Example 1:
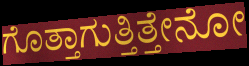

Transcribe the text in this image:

ಗೊತ್ತಾಗುತ್ತಿತ್ತೇನೋ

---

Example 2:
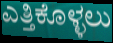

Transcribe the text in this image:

ಎತ್ತಿಕೊಳ್ಳಲು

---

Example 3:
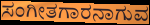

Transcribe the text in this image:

ಸಂಗೀತಗಾರನಾಗುವ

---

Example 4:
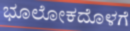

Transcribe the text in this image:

ಭೂಲೋಕದೊಳಗೆ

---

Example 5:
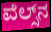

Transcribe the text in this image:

ವೆಲ್ಸ್‌ನ